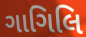
ગાગિલિ